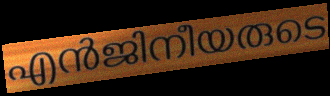
എൻജിനീയരുടെ